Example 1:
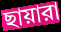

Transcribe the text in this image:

ছায়ারা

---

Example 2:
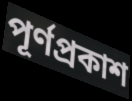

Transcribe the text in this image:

পূর্ণপ্রকাশ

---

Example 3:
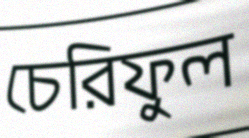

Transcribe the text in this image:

চেরিফুল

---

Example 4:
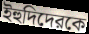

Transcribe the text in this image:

ইহুদিদেরকে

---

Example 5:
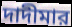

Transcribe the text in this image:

দাদীমার